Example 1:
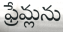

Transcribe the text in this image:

ఫ్రేమ్లను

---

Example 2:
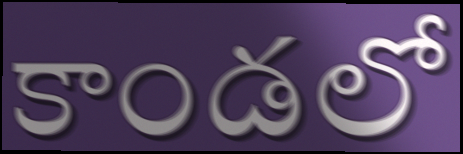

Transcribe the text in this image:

కాండలో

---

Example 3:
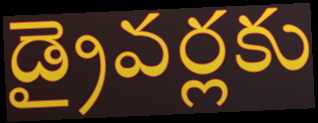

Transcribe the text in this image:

డ్రైవర్లకు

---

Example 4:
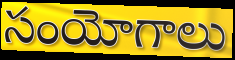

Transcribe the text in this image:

సంయోగాలు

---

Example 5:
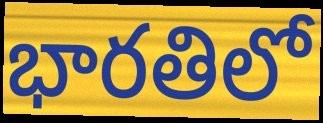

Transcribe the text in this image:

భారతిలో